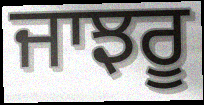
ਜਾਝਰੂ